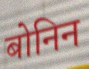
बोनिन